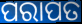
ପରାପତ